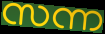
സന്ന